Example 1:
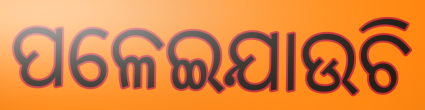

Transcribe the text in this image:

ପଳେଇଯାଉଚି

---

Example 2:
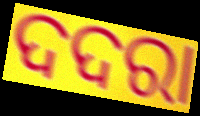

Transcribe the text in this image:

ଦଦରା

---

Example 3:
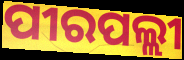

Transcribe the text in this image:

ପୀରପଲ୍ଲୀ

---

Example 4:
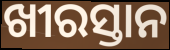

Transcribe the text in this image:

ଖୀରସ୍ତାନ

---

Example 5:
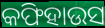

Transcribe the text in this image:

କଫିହାଉସ